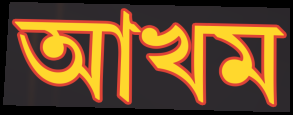
আখম